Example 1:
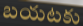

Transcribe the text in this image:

బయటకు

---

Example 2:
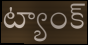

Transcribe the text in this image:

ట్యాంక్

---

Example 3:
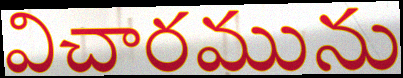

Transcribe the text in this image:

విచారమును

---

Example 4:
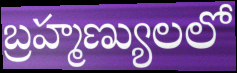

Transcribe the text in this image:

బ్రహ్మణ్యులలో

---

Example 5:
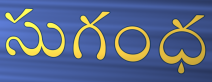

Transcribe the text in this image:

సుగంధ